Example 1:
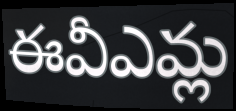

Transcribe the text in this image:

ఈవీఎమ్ల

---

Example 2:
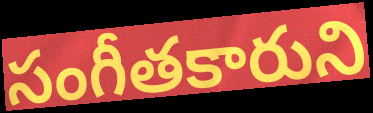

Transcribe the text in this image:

సంగీతకారుని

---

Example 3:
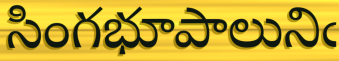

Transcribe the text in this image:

సింగభూపాలునిఁ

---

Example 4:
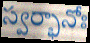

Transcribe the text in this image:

స్వర్భానోః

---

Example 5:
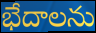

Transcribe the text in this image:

భేదాలను